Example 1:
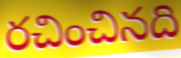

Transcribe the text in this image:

రచించినది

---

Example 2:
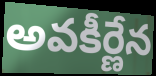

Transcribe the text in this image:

అవకీర్ణేన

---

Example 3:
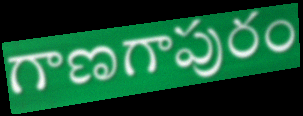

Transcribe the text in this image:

గాణగాపురం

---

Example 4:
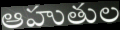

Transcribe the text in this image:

ఆహుతుల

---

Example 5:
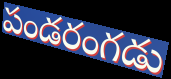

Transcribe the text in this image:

పండరంగడు